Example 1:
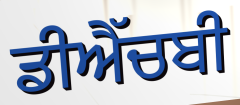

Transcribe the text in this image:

ਡੀਐੱਚਬੀ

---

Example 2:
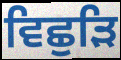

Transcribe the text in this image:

ਵਿਛੁੜਿ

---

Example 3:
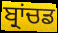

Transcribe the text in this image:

ਬ੍ਰਾਂਚਡ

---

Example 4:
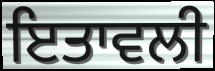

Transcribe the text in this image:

ਇਤਾਵਲੀ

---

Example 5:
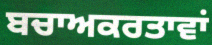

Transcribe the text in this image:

ਬਚਾਅਕਰਤਾਵਾਂ